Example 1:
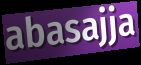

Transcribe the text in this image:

abasajja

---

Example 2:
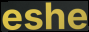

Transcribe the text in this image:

eshe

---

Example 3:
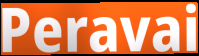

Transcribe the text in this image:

Peravai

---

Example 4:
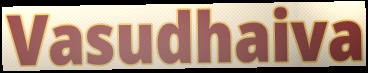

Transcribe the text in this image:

Vasudhaiva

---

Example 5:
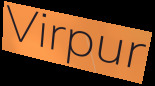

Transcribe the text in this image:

Virpur